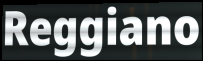
Reggiano